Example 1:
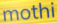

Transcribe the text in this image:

mothi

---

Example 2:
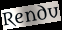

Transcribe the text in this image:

Rendu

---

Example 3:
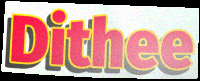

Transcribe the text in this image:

Dithee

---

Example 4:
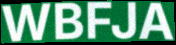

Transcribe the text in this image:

WBFJA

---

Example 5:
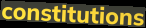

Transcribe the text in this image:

constitutions